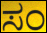
ಸಂ